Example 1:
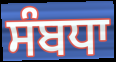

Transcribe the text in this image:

ਸੰਬਧਾ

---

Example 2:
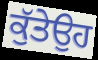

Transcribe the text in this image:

ਕੁੱਤੇਉਹ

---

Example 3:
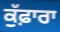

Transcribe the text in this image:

ਕੁੱਫ਼ਾਰਾ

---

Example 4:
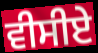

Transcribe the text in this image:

ਵੀਸੀਏ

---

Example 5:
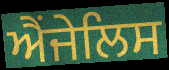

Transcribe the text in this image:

ਐਂਜੇਲਿਸ